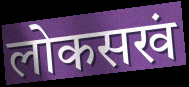
लोकसखं